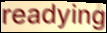
readying